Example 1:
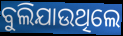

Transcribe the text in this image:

ବୁଲିଯାଉଥିଲେ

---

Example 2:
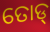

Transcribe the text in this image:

ତୋଡ୍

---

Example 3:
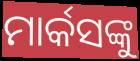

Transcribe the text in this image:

ମାର୍କସଙ୍କୁ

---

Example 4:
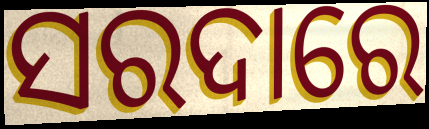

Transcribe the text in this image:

ସରଦାରେ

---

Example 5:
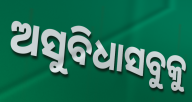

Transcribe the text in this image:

ଅସୁବିଧାସବୁକୁ